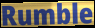
Rumble